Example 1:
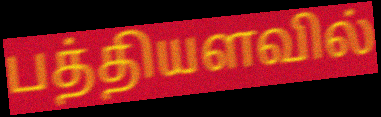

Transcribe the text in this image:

பத்தியளவில்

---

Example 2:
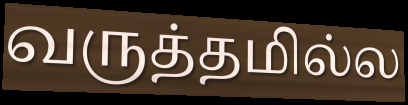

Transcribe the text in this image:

வருத்தமில்ல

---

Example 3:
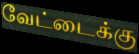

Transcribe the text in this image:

வேட்டைக்கு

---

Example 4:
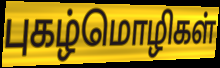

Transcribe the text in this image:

புகழ்மொழிகள்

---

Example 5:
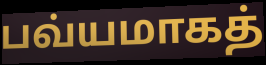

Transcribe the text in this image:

பவ்யமாகத்